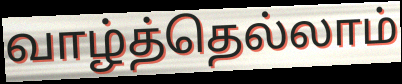
வாழ்த்தெல்லாம்